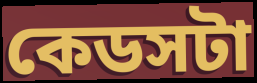
কেডসটা